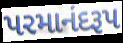
પરમાનંદરૂપ